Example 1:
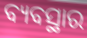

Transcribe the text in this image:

ବ୍ୟବସ୍ଥାର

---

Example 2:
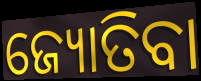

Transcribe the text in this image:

ଜ୍ୟୋତିବା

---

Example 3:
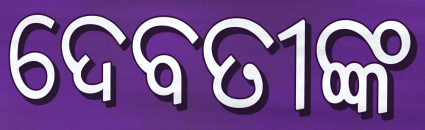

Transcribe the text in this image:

ଦେବତୀଙ୍କ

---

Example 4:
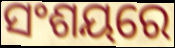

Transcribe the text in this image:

ସଂଶୟରେ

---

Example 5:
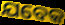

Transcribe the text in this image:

ଯବେକ